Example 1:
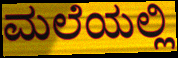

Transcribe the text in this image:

ಮಲೆಯಲ್ಲಿ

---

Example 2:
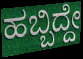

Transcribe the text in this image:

ಹಬ್ಬಿದ್ದೇ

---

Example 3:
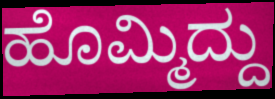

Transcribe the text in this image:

ಹೊಮ್ಮಿದ್ದು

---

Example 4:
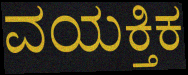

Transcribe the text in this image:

ವಯಕ್ತಿಕ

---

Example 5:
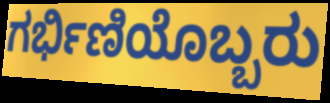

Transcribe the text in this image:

ಗರ್ಭಿಣಿಯೊಬ್ಬರು